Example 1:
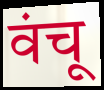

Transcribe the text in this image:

वंचू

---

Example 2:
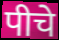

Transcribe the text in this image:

पीचे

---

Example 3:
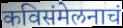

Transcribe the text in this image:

कविसंमेलनाचं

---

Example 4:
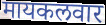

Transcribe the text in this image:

मायकलवार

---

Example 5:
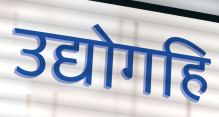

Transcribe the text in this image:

उद्योगहि